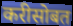
करीसोबत